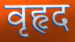
वृहृद